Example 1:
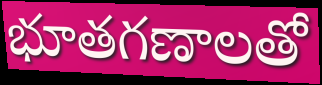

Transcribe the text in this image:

భూతగణాలతో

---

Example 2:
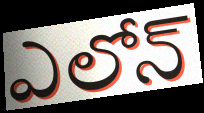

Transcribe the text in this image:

ఎలోన్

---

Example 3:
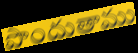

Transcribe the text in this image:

పొందుతాము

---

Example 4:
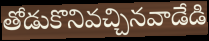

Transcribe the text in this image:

తోడుకొనివచ్చినవాడేడి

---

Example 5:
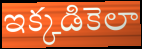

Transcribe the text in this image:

ఇక్కడికెలా